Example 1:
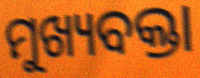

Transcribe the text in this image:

ମୁଖ୍ୟବକ୍ତା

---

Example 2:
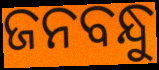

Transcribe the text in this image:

ଜନବନ୍ଧୁ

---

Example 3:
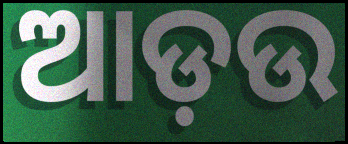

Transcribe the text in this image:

ଆଡ଼ଉ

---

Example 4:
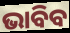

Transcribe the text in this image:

ଭାବିବ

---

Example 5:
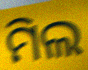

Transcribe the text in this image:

ମିଲ